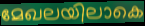
മേഖലയിലാകെ